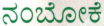
ನಂಬೋಕೆ